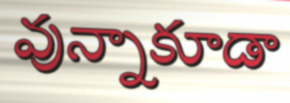
వున్నాకూడా